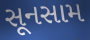
સૂનસામ